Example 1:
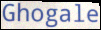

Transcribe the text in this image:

Ghogale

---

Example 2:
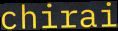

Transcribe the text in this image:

chirai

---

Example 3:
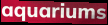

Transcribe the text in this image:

aquariums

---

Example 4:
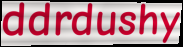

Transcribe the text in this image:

ddrdushy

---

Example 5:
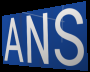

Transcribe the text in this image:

ANS